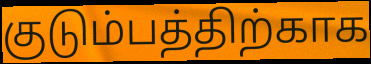
குடும்பத்திற்காக